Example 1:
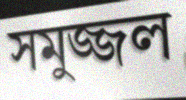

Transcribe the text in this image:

সমুজ্জল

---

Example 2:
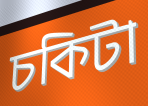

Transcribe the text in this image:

চকিটা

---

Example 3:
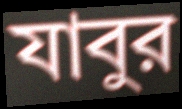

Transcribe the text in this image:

যাবুর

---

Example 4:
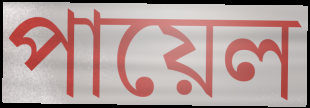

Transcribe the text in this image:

পায়েল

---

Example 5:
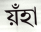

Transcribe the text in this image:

য়ঁহা